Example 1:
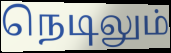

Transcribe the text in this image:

நெடிலும்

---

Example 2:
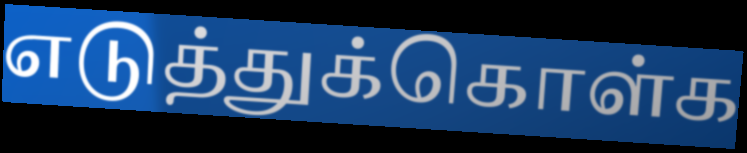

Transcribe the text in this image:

எடுத்துக்கொள்க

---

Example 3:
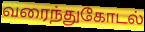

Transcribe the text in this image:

வரைந்துகோடல்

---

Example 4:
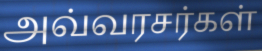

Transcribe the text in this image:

அவ்வரசர்கள்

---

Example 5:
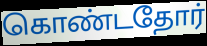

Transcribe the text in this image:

கொண்டதோர்